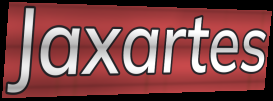
Jaxartes